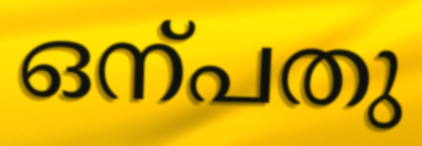
ഒന്പതു